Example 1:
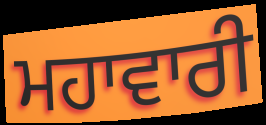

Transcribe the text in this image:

ਮਹਾਵਾਰੀ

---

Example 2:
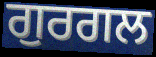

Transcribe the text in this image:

ਗੁਰਗਲ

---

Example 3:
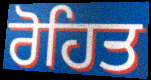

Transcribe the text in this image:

ਰੋਹਿਤ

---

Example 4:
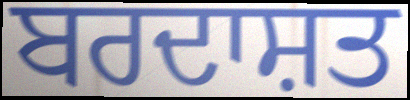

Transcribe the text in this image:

ਬਰਦਾਸ਼ਤ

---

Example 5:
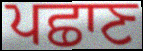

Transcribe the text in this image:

ਪਛਾਣ